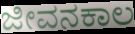
ಜೀವನಕಾಲ